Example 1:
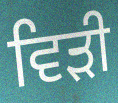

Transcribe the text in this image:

ਵਿੜੀ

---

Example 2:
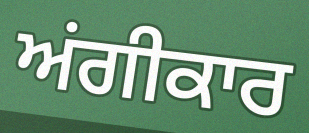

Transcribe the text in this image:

ਅਂਗੀਕਾਰ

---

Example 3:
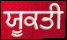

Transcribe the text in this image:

ਯੂਕਤੀ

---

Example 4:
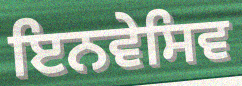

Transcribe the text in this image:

ਇਨਵੇਸਿਵ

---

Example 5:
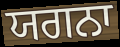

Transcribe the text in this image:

ਯਗਨਾ